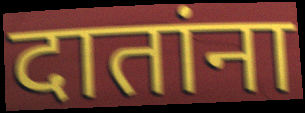
दातांना